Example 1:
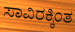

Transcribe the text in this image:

ಸಾವಿರಕ್ಕಿಂತ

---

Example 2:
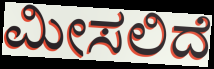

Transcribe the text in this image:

ಮೀಸಲಿದೆ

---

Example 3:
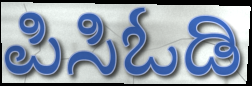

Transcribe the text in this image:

ಪಿಸಿಓಡಿ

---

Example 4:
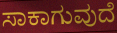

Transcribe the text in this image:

ಸಾಕಾಗುವುದೆ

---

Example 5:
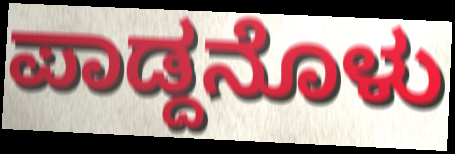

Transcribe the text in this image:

ಪಾಡ್ದನೊಳು